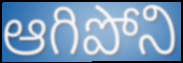
ఆగిపోని